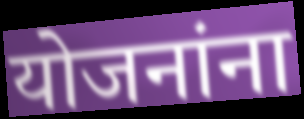
योजनांना